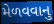
મેળવવાનુ